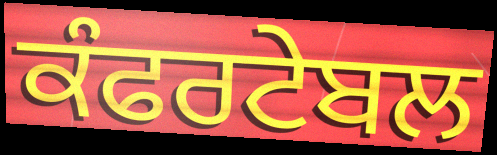
ਕੰਫਰਟੇਬਲ